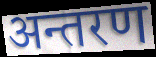
अन्तरण